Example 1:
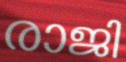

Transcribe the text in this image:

രാജി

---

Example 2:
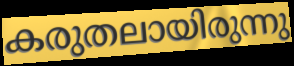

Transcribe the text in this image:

കരുതലായിരുന്നു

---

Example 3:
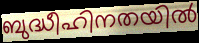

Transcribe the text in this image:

ബുദ്ധീഹിനതയിൽ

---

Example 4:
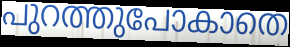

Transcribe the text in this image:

പുറത്തുപോകാതെ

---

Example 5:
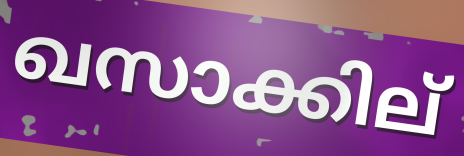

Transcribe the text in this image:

ഖസാക്കില്